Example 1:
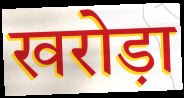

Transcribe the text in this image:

खरोड़ा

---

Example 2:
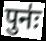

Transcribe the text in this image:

पुनः॑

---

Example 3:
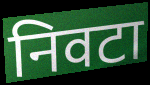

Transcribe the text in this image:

निवटा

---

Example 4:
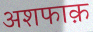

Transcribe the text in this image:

अशफाक़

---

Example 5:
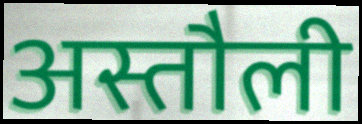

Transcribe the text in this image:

अस्तौली